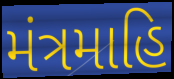
મંત્રમાહિ